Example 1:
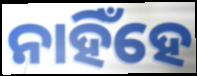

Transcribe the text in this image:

ନାହିଁହେ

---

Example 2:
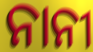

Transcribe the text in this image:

ନାନୀ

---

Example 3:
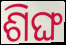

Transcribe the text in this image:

ଶିଙ୍ଘ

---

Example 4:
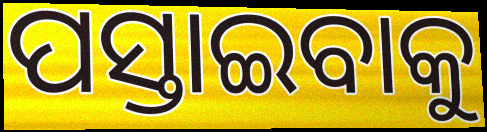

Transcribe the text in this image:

ପସ୍ତାଇବାକୁ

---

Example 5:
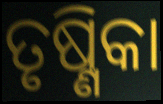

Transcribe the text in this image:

ତୃଷ୍ଣିକା